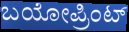
ಬಯೋಪ್ರಿಂಟ್